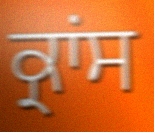
ਕ੍ਰਾਂਸ